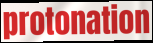
protonation